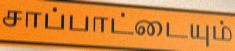
சாப்பாட்டையும்